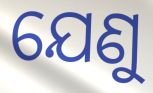
ଯେଣୁ